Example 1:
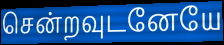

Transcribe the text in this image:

சென்றவுடனேயே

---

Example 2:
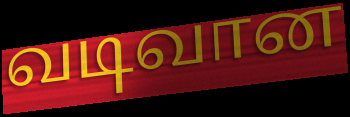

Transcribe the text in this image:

வடிவான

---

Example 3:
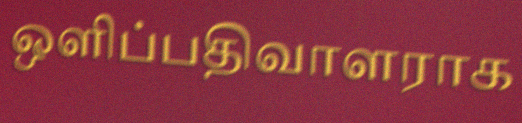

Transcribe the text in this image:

ஒளிப்பதிவாளராக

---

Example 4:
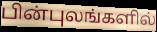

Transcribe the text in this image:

பின்புலங்களில்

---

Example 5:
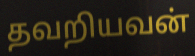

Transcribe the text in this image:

தவறியவன்